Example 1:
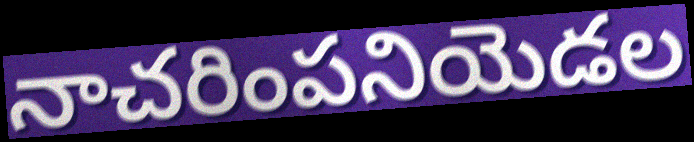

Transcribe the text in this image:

నాచరింపనియెడల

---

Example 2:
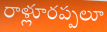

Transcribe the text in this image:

రాళ్లూరప్పలూ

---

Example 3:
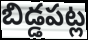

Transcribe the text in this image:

బిడ్డపట్ల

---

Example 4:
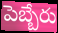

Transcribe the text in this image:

పెబ్బేరు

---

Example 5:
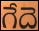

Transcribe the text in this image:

గేదె